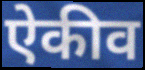
ऐकीव